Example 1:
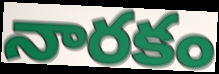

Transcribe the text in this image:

నారకం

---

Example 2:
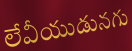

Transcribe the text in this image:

లేవీయుడునగు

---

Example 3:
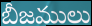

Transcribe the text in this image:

బీజములు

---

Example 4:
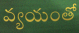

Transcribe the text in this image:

వ్యయంతో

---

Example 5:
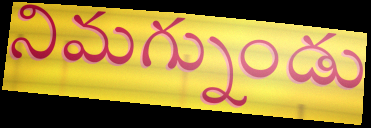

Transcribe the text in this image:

నిమగ్నుండు